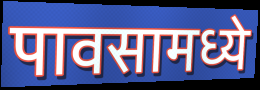
पावसामध्ये